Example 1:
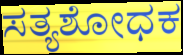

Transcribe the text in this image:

ಸತ್ಯಶೋಧಕ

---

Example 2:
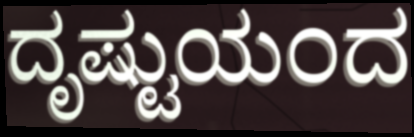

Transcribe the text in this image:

ದೃಷ್ಟುಯಂದ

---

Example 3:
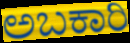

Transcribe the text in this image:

ಅಬಕಾರಿ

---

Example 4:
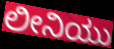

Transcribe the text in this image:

ಲೀನಿಯು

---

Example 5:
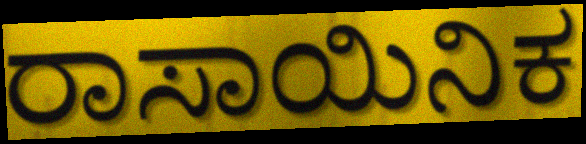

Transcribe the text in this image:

ರಾಸಾಯಿನಿಕ